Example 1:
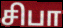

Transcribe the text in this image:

சிபா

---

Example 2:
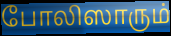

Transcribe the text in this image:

போலிஸாரும்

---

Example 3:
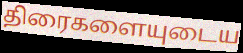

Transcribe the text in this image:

திரைகளையுடைய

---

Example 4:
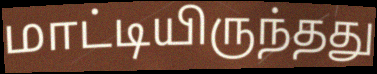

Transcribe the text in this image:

மாட்டியிருந்தது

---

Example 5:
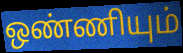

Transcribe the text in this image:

ஒண்ணியும்